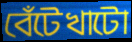
বেঁটেখাটো